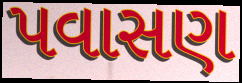
પવાસણ